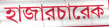
হাজারচারেক